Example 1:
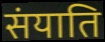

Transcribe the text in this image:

संयाति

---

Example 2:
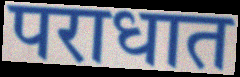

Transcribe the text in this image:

पराधात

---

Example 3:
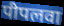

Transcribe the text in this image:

पीपलवा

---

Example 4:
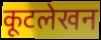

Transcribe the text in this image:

कूटलेखन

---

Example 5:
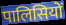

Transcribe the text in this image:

पालिसियों